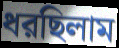
ধরছিলাম